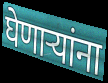
घेणाऱ्यांना